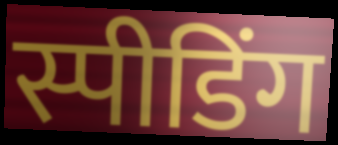
स्‍पीडिंग